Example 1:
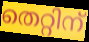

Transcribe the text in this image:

തെറ്റിന്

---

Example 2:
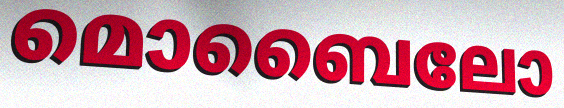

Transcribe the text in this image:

മൊബൈലോ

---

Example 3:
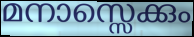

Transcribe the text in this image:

മനാസ്സെക്കും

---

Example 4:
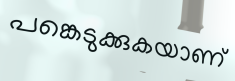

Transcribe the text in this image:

പങ്കെടുക്കുകയാണ്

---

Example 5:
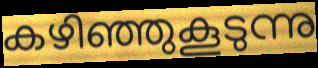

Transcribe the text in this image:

കഴിഞ്ഞുകൂടുന്നു